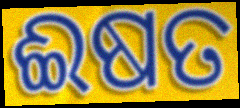
ଈଷତ